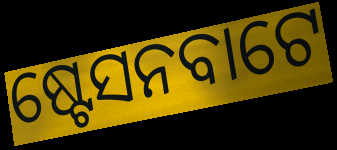
ଷ୍ଟେସନବାଟେ